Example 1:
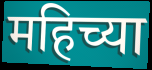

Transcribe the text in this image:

महिच्या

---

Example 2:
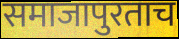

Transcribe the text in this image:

समाजापुरताच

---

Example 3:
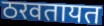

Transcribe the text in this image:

ठरवतायत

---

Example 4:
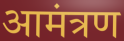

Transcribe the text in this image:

आमंत्रण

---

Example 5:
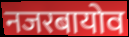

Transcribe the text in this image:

नजरबायोव